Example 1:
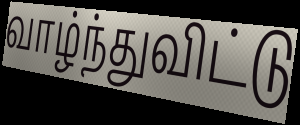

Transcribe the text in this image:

வாழ்ந்துவிட்டு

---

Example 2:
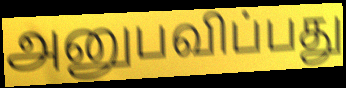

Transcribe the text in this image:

அனுபவிப்பது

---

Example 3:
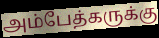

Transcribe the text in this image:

அம்பேத்கருக்கு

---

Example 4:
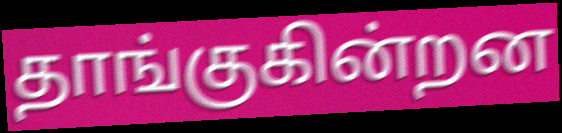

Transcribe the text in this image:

தாங்குகின்றன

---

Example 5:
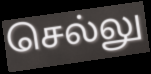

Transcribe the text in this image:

செல்லு